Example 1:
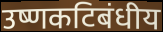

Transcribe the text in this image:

उष्णकटिबंधीय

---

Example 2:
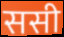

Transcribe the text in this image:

ससी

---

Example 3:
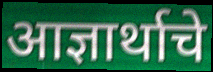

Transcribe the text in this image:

आज्ञार्थाचे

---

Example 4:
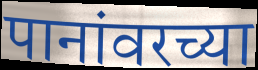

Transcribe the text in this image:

पानांवरच्या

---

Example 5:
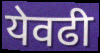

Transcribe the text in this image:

येवढी